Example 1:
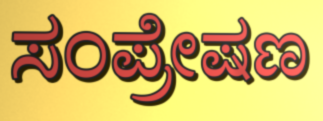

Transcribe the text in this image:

ಸಂಪ್ರೇಷಣ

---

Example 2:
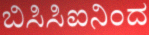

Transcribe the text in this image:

ಬಿಸಿಸಿಐನಿಂದ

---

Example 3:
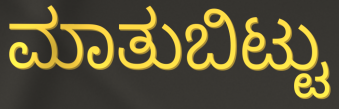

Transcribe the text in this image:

ಮಾತುಬಿಟ್ಟು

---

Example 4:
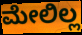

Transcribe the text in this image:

ಮೇಲಿಲ್ಲ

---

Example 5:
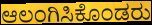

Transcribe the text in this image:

ಆಲಂಗಿಸಿಕೊಂಡರು